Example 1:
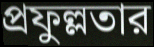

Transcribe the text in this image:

প্রফুল্লতার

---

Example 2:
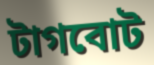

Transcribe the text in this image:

টাগবোট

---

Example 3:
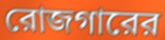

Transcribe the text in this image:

রোজগারের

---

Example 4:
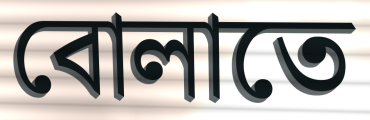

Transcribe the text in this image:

বোলাতে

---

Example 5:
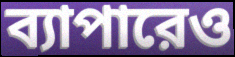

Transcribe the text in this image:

ব্যাপারেও